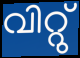
വിറ്റു്